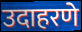
उदाहरणे